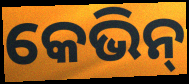
କେଭିନ୍